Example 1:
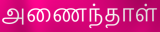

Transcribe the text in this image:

அணைந்தாள்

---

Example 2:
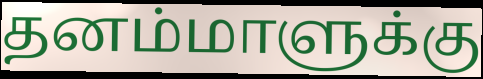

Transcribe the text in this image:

தனம்மாளுக்கு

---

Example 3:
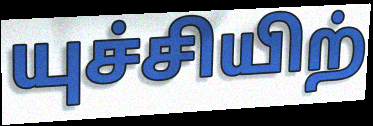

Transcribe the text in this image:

யுச்சியிற்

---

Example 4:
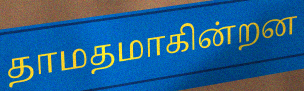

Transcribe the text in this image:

தாமதமாகின்றன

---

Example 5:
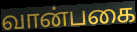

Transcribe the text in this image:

வான்பகை